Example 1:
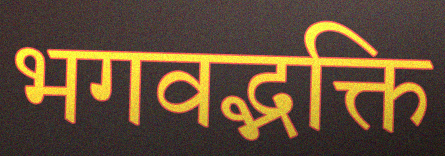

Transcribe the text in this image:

भगवद्भक्ति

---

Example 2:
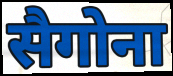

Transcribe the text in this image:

सैगोना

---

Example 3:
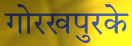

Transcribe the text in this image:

गोरखपुरके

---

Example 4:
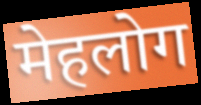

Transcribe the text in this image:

मेहलोग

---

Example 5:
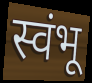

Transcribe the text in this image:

स्वंभू